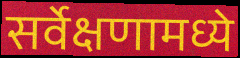
सर्वेक्षणामध्ये